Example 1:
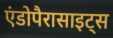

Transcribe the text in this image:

एंडोपैरासाइट्स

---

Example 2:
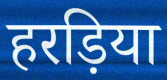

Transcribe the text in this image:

हरड़िया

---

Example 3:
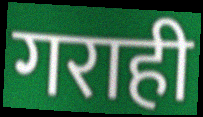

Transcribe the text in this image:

गराही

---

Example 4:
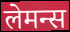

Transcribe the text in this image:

लेमन्स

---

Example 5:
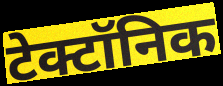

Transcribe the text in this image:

टेक्टॉनिक